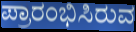
ಪ್ರಾರಂಭಿಸಿರುವ